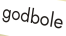
godbole